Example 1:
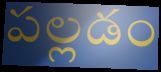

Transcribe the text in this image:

పల్లడం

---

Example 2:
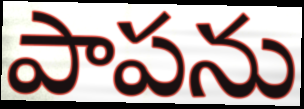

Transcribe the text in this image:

పాపను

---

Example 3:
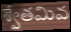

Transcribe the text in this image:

శ్వేతమివ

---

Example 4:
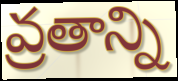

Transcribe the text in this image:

వ్రతాన్ని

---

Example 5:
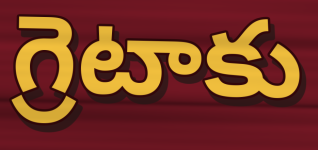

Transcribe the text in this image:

గ్రెటాకు